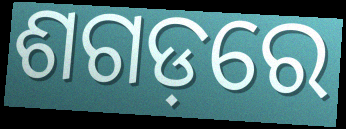
ଶଗଡ଼ରେ